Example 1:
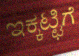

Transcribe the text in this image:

ಇಕ್ಕಟ್ಟಿಗೆ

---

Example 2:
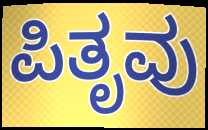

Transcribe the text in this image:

ಪಿತೃವು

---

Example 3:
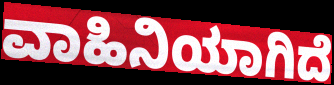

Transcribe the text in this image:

ವಾಹಿನಿಯಾಗಿದೆ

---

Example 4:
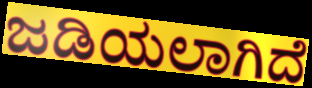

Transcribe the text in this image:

ಜಡಿಯಲಾಗಿದೆ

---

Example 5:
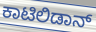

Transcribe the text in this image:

ಕಾಟಿಲಿಡಾನ್